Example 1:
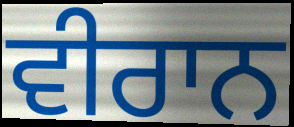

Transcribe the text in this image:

ਵੀਰਾਨ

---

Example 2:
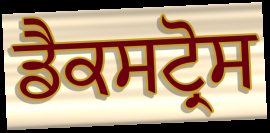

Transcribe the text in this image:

ਡੈਕਸਟ੍ਰੋਸ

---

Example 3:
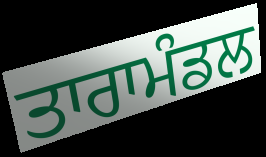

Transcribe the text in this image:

ਤਾਰਾਮੰਡਲ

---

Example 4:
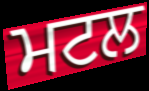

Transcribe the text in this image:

ਮਟਲ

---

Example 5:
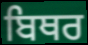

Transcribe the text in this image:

ਬਿਥਰ